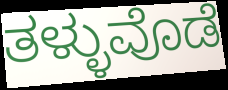
ತಳ್ಳುವೊಡೆ